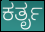
ಕರ್ತೃ